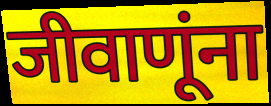
जीवाणूंना